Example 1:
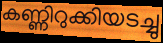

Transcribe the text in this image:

കണ്ണിറുക്കിയടച്ചു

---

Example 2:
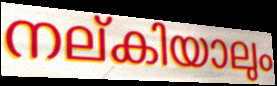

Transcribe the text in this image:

നല്‌കിയാലും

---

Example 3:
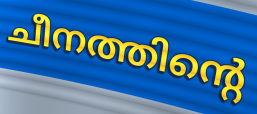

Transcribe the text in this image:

ചീനത്തിന്റെ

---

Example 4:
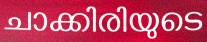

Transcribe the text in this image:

ചാക്കിരിയുടെ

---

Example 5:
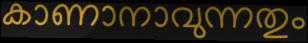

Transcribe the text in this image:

കാണാനാവുന്നതും